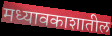
मध्यावकाशातील